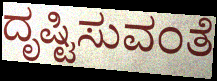
ದೃಷ್ಟಿಸುವಂತೆ